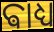
ଵାଧ୍ୟ